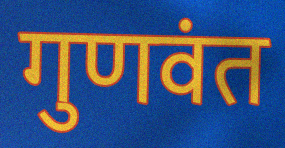
गुणवंत